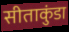
सीताकुंडा